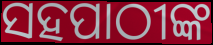
ସହପାଠୀଙ୍କ